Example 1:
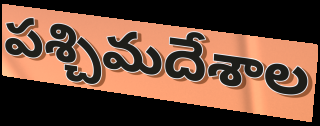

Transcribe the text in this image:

పశ్చిమదేశాల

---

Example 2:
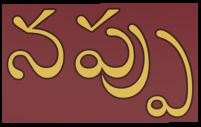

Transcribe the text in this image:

నప్పు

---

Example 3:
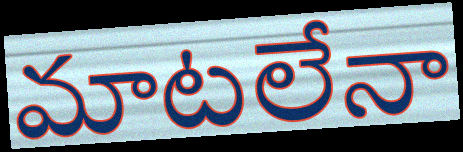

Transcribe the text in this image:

మాటలేనా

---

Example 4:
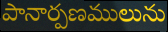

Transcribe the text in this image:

పానార్పణములును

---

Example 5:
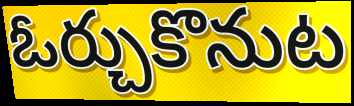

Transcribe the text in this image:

ఓర్చుకొనుట